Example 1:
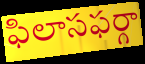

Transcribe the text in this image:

ఫిలాసఫర్గా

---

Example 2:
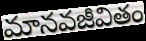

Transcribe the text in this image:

మానవజీవితం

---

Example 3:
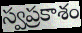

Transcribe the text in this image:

స్వప్రకాశం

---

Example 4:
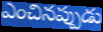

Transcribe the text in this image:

ఎంచినప్పుడు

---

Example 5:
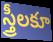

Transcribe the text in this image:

స్త్రీలకూ